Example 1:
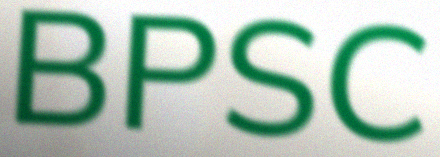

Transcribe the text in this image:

BPSC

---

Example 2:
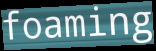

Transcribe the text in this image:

foaming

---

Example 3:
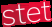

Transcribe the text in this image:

stet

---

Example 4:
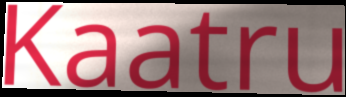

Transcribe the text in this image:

Kaatru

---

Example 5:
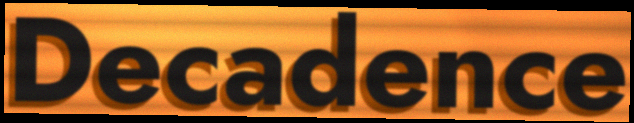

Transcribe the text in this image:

Decadence